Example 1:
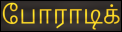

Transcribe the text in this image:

போராடிக்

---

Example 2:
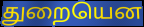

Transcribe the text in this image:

துறையென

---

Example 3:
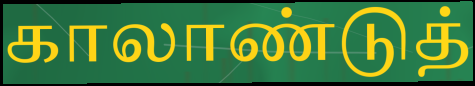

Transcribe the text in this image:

காலாண்டுத்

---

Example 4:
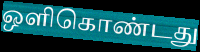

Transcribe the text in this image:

ஒளிகொண்டது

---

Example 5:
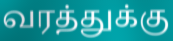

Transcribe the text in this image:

வரத்துக்கு